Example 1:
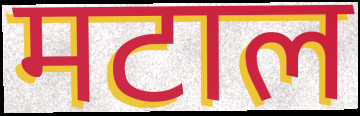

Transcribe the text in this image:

मटाल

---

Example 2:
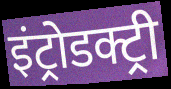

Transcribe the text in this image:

इंट्रोडक्ट्री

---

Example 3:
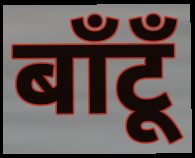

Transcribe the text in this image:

बाँटूँ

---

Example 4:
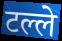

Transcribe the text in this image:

टल्ले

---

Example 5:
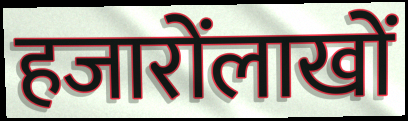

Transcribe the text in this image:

हजारोंलाखों